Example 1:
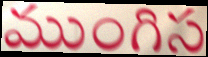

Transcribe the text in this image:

ముంగిస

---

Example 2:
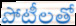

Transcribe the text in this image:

పోటీలతో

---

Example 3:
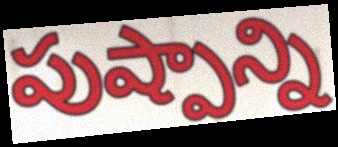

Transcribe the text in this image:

పుష్పాన్ని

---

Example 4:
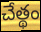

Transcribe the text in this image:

చేత్థం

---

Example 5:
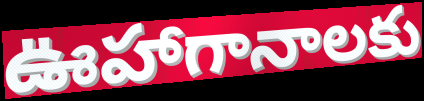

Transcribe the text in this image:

ఊహాగానాలకు